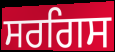
ਸਰਗਿਸ